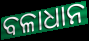
ବଳାଧାନ